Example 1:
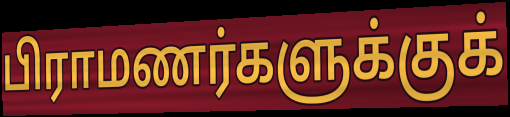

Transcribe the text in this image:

பிராமணர்களுக்குக்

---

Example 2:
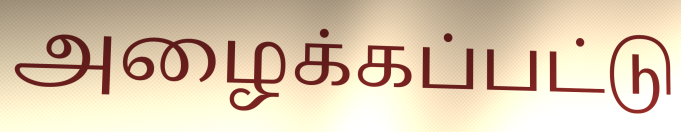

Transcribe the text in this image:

அழைக்கப்பட்டு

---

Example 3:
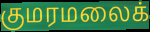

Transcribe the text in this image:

குமரமலைக்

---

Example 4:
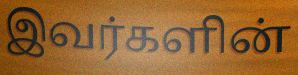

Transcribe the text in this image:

இவர்களின்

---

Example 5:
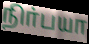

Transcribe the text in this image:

நிர்பயா